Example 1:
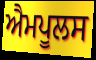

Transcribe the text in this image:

ਐਮਪੂਲਸ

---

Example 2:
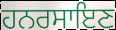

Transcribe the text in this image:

ਹਨਰਸਾਇਣ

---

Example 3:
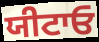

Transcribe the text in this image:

ਯੀਟਾਓ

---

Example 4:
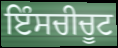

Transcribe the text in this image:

ਇੰਸਚੀਚੂਟ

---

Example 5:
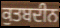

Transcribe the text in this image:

ਕੁਤਬਦੀਨ